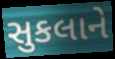
સુકલાને